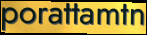
porattamtn